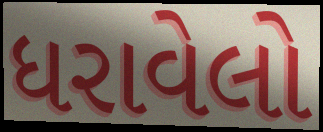
ધરાવેલો